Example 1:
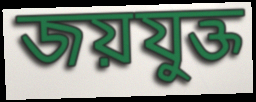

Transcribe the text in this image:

জয়যুক্ত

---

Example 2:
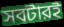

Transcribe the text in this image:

সবটারই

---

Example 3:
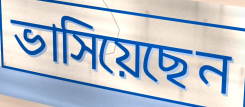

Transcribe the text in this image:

ভাসিয়েছেন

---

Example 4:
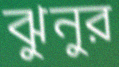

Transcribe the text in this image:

ঝুনুর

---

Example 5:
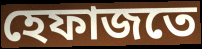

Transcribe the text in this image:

হেফাজতে